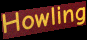
Howling